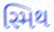
સ્મિથ